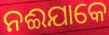
ନଈଯାକେ